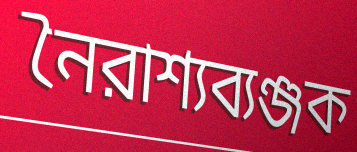
নৈরাশ্যব্যঞ্জক